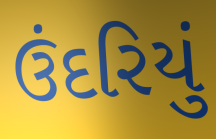
ઉંદરિયું